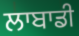
ਲਾਬਾਡੀ